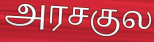
அரசகுல